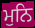
ਮੁਨਿ